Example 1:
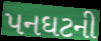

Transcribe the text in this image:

પનઘટની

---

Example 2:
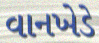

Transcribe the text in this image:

વાનખેડે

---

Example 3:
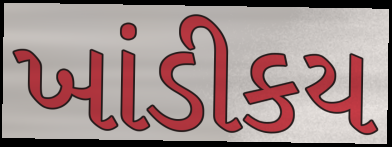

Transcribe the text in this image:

ખાંડીકય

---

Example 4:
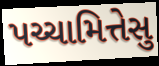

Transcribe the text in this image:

પચ્ચામિત્તેસુ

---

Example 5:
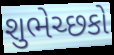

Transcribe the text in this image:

શુભેચ્છકો